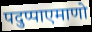
पदुप्पाएमाणो